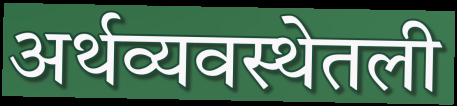
अर्थव्यवस्थेतली